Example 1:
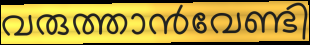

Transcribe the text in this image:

വരുത്താൻവേണ്ടി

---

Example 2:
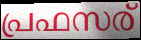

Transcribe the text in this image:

പ്രഫസര്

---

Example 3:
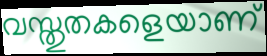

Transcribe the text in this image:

വസ്തുതകളെയാണ്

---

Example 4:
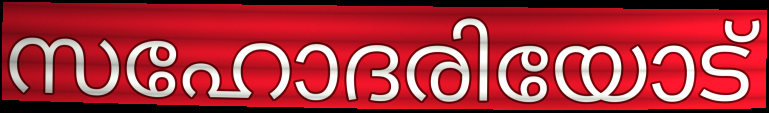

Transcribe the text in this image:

സഹോദരിയോട്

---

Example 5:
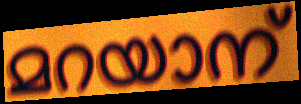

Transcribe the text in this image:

മറയാന്